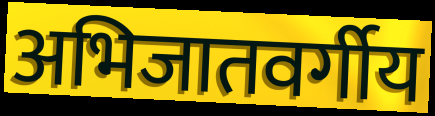
अभिजातवर्गीय